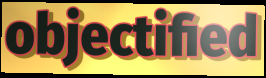
objectified